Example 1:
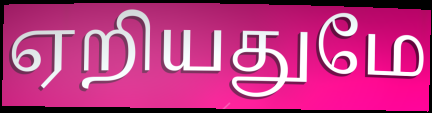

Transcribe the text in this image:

ஏறியதுமே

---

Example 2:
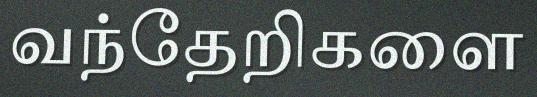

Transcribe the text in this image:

வந்தேறிகளை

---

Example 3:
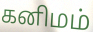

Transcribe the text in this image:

கனிமம்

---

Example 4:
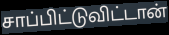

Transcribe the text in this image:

சாப்பிட்டுவிட்டான்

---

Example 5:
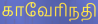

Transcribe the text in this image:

காவேரிநதி